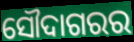
ସୌଦାଗରର